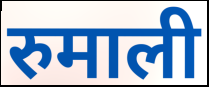
रुमाली